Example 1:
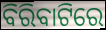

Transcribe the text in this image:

ବିରିବାଟିରେ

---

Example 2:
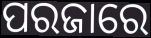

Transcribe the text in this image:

ପରଜାରେ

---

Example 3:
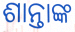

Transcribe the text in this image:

ଶାନ୍ତାଙ୍କ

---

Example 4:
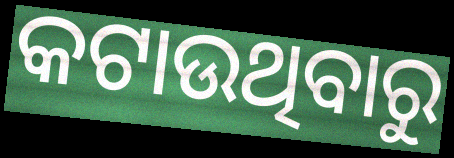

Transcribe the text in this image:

କଟାଉଥିବାରୁ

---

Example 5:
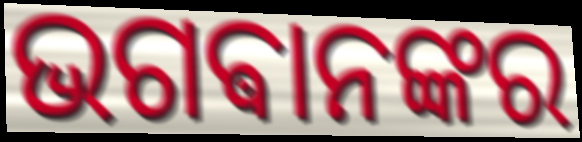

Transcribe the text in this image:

ଭଗଵାନଙ୍କର